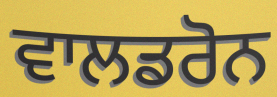
ਵਾਲਡਰੋਨ